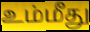
உம்மீது